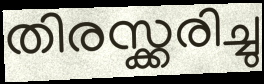
തിരസ്ക്കരിച്ചു